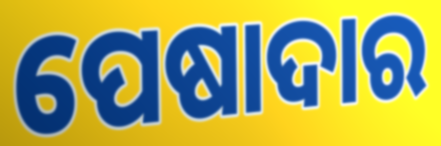
ପେଷାଦାର